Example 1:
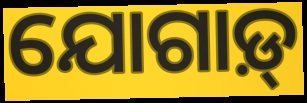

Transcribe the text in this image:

ଯୋଗାଡ଼୍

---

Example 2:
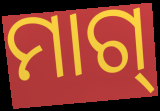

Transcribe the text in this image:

ମାଗ୍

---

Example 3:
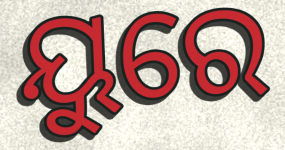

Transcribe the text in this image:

ୟୁରେ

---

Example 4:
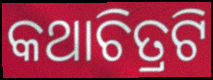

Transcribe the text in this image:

କଥାଚିତ୍ରଟି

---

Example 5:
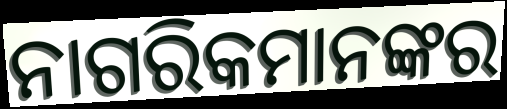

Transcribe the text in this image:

ନାଗରିକମାନଙ୍କର